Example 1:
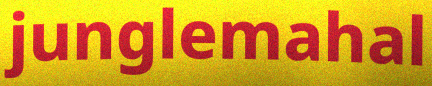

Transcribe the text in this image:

junglemahal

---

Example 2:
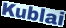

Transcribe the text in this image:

Kublai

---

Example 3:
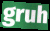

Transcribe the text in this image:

gruh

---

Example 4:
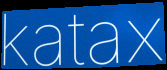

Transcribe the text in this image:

katax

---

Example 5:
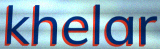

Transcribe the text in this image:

khelar